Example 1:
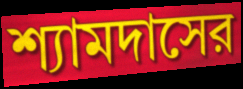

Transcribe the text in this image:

শ্যামদাসের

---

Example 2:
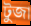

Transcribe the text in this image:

টুজা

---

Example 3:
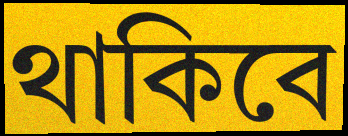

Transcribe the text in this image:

থাকিবে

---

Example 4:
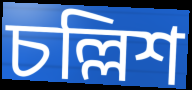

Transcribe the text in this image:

চল্লিশ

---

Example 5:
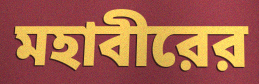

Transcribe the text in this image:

মহাবীরের